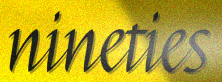
nineties